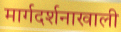
मार्गदर्शनाखाली